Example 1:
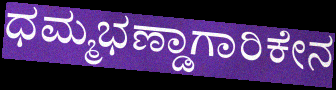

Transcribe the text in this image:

ಧಮ್ಮಭಣ್ಡಾಗಾರಿಕೇನ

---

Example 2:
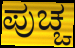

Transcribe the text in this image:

ಪುಚ್ಚ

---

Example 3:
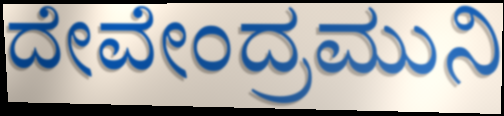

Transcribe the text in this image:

ದೇವೇಂದ್ರಮುನಿ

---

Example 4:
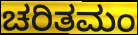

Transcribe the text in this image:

ಚರಿತಮಂ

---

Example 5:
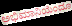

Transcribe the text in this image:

ಅಭಿಮಾನಿಯೆಂದೂ